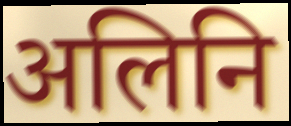
अलिनि